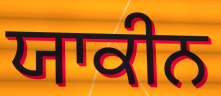
ਯਾਕੀਨ